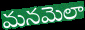
మనమెలా